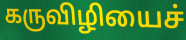
கருவிழியைச்